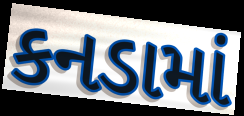
કનડામાં